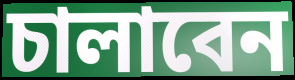
চালাবেন